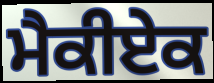
ਮੈਕੀਏਕ